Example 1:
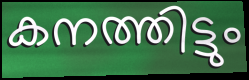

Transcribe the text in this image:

കനത്തിട്ടും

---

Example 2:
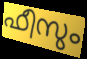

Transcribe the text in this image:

ഫീസും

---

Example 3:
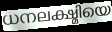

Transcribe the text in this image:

ധനലക്ഷ്മിയെ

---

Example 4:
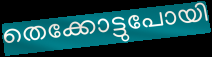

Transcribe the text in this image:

തെക്കോട്ടുപോയി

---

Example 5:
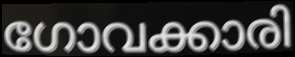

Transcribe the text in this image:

ഗോവക്കാരി